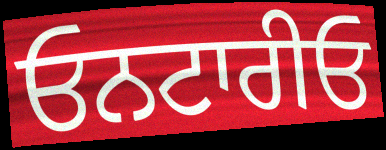
ਓਨਟਾਰੀਓ